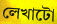
লেখাটো